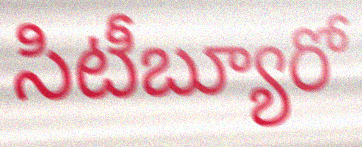
సిటీబ్యూరో